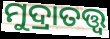
ମୁଦ୍ରାତତ୍ତ୍ବ